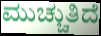
ಮುಚ್ಚುತಿದೆ